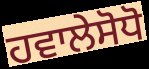
ਹਵਾਲੇਸੋਧੋ